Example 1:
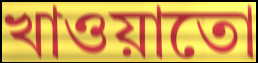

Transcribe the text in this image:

খাওয়াতো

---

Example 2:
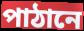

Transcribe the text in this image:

পাঠানে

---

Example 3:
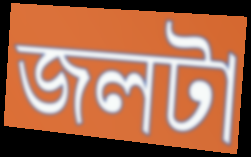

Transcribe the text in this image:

জলটা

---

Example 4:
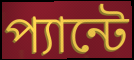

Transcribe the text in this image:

প্যান্টে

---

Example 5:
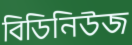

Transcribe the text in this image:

বিডিনিউজ